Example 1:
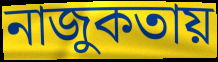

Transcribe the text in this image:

নাজুকতায়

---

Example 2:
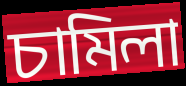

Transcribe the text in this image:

চামিলা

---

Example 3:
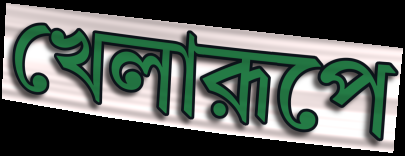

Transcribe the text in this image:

খেলারূপে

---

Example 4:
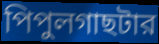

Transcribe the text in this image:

পিপুলগাছটার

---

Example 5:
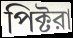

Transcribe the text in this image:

পিক্টরা